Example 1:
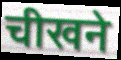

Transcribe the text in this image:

चीखने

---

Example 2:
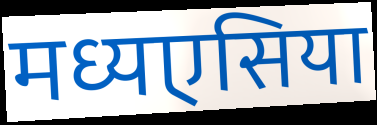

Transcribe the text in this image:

मध्यएसिया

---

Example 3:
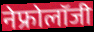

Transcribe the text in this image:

नेफ्रोलॉजी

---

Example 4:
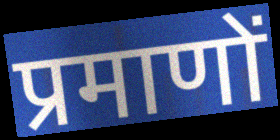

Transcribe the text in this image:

प्रमाणों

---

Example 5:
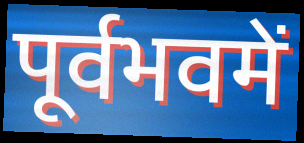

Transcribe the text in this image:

पूर्वभवमें